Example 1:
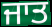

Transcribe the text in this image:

ਜਾਤ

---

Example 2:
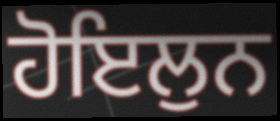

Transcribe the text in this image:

ਹੋਇਲੁਨ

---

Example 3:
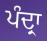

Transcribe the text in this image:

ਪੰਦ੍ਰਾ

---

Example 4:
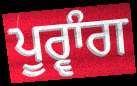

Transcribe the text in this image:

ਪੂਰ੍ਵਾੰਗ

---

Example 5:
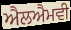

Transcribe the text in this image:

ਐਲਐਮਵੀ